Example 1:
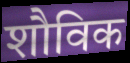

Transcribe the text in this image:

शौविक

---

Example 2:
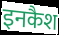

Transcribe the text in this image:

इनकैश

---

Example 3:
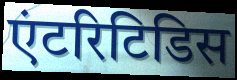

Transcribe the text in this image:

एंटरिटिडिस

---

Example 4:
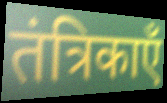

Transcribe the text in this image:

तंत्रिकाएँ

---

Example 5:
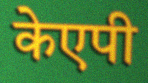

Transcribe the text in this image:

केएपी